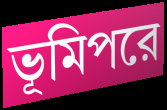
ভূমিপরে